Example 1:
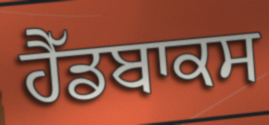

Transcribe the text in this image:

ਹੈੱਡਬਾਕਸ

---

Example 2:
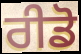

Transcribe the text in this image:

ਰੀਡੋ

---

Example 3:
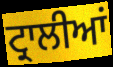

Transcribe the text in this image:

ਟ੍ਰਾਲੀਆਂ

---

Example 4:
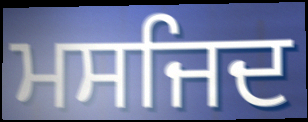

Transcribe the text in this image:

ਮਸਜਿਦ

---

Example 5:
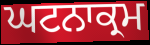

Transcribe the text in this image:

ਘਟਨਾਕ੍ਰਮ